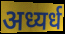
अध्यर्ध